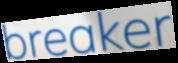
breaker